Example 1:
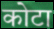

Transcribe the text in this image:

कोटा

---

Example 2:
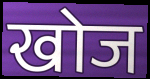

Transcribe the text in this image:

खोज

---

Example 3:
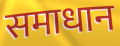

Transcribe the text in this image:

समाधान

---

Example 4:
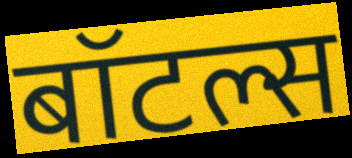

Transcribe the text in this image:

बॉटल्स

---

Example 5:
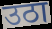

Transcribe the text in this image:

उठा